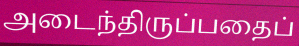
அடைந்திருப்பதைப்